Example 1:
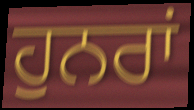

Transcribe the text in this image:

ਹੁਨਰਾਂ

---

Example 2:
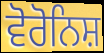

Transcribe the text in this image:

ਵੋਰੋਨਿਸ਼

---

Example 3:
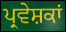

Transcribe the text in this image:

ਪ੍ਰਵੇਸ਼ਕਾਂ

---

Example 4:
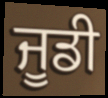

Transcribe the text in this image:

ਜੂਡੀ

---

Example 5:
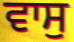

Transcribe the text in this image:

ਵਾਸੁ